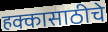
हक्कासाठीचे